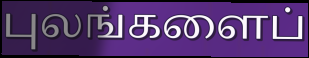
புலங்களைப்